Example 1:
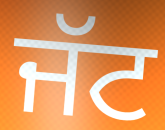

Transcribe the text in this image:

ਜੱਟ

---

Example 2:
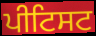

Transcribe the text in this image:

ਪੀਟਿਸਟ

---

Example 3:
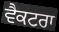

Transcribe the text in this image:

ਵੈਕਟਰਾ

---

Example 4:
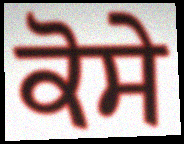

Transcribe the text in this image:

ਕੋਸੇ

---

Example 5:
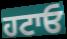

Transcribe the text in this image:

ਹਟਾਓ